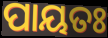
ପାୟତଃ